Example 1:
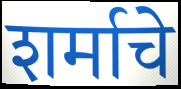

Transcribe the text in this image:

शर्माचे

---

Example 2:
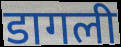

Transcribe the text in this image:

डागली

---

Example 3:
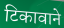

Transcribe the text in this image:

टिकावाने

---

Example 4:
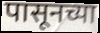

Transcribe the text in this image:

पासूनच्या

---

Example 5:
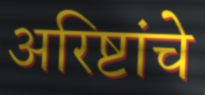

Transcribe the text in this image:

अरिष्टांचे